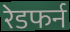
रेडफर्न